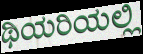
ಥಿಯರಿಯಲ್ಲಿ